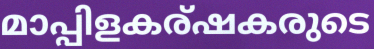
മാപ്പിളകര്ഷകരുടെ